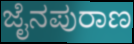
ಜೈನಪುರಾಣ